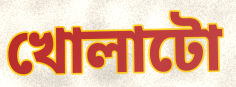
খোলাটো